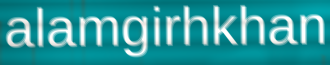
alamgirhkhan